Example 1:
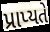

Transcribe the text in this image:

પ્રાપ્યતે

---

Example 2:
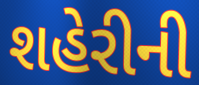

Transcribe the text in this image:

શહેરીની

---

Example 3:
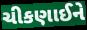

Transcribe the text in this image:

ચીકણાઈને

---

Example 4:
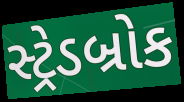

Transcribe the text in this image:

સ્ટ્રેડબ્રોક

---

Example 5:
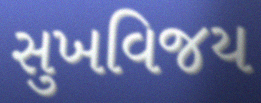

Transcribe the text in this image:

સુખવિજય